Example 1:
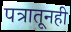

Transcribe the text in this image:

पत्रातूनही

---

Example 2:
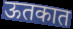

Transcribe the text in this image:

ऊतकात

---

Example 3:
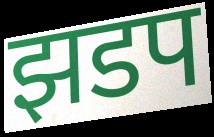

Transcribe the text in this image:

झडप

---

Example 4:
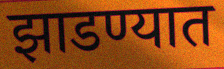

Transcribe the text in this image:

झाडण्यात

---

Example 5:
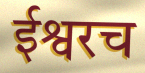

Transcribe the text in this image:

ईश्वरच